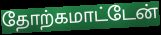
தோற்கமாட்டேன்